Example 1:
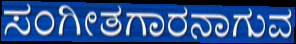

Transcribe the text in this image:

ಸಂಗೀತಗಾರನಾಗುವ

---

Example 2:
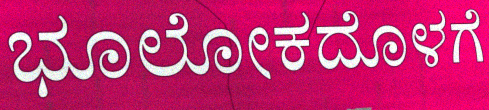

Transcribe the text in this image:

ಭೂಲೋಕದೊಳಗೆ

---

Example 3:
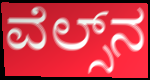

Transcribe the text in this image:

ವೆಲ್ಸ್‌ನ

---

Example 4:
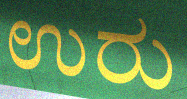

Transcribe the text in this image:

ಉರು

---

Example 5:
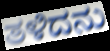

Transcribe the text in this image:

ತಳಿದನು